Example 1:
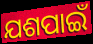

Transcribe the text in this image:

ଯଶପାଇଁ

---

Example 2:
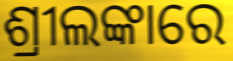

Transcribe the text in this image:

ଶ୍ରୀଲଙ୍କାରେ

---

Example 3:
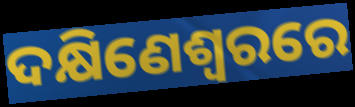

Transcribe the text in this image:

ଦକ୍ଷିଣେଶ୍ୱରରେ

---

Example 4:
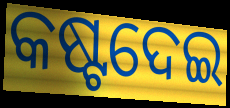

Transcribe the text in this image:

କଷ୍ଟଦେଇ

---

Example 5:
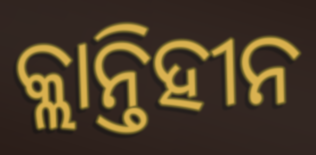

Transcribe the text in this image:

କ୍ଲାନ୍ତିହୀନ